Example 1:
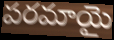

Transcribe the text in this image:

పరమాయై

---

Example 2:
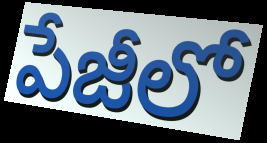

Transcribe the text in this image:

పేజీలో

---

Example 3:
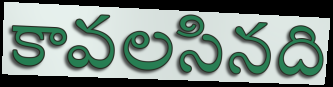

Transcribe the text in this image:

కావలసినది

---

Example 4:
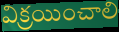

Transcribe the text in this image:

విక్రయించాలి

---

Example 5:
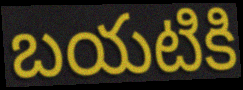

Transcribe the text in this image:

బయటికి